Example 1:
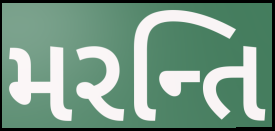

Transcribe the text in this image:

મરન્તિ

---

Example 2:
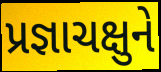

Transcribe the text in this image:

પ્રજ્ઞાચક્ષુને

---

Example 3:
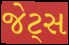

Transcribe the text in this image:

જેટ્સ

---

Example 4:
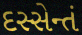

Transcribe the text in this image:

દસ્સેન્તં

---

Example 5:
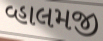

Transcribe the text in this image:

વ્હાલમજી